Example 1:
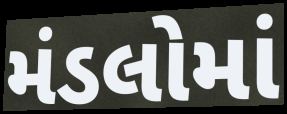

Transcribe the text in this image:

મંડલોમાં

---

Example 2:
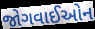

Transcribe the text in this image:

જોગવાઈઓન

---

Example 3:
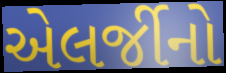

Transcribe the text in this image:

એલર્જીનો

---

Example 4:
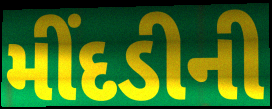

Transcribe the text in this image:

મીંદડીની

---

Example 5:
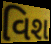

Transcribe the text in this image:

વિશ